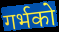
गर्भको